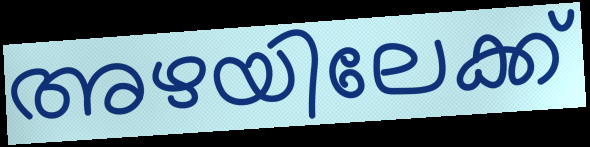
അഴയിലേക്ക്